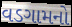
વડગામનો